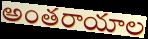
అంతరాయాల